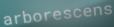
arborescens